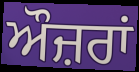
ਔਜ਼ਰਾਂ